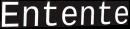
Entente